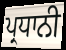
ਪ੍ਰਧਾਨੀ